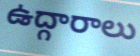
ఉద్గారాలు